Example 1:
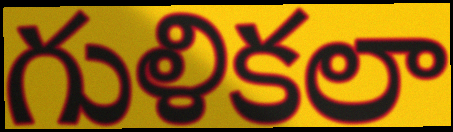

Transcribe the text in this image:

గుళికలా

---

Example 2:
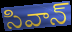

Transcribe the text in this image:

సివాన్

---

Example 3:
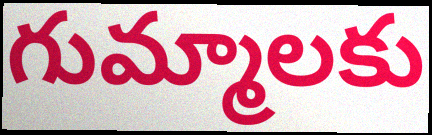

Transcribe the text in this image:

గుమ్మాలకు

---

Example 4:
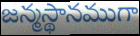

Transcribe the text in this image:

జన్మస్థానముగా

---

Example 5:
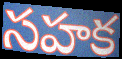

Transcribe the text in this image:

సహక